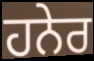
ਹਨੇਰ